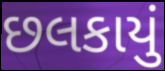
છલકાયું